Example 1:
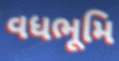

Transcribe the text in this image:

વધભૂમિ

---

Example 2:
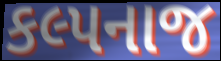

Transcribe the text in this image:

કલ્પનાજ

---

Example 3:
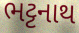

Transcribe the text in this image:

ભટ્ટનાથ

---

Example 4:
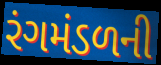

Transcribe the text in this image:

રંગમંડળની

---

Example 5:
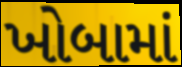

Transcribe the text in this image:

ખોબામાં